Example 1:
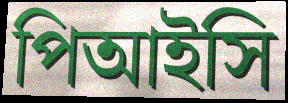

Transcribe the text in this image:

পিআইসি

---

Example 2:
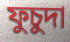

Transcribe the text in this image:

ফুচুদা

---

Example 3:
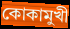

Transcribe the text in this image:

কোকামুখী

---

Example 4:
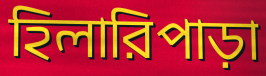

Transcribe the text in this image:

হিলারিপাড়া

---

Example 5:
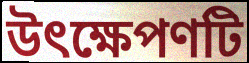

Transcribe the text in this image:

উৎক্ষেপণটি